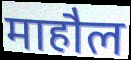
माहौल